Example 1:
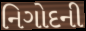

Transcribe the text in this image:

નિગોદની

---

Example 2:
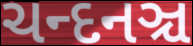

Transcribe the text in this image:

ચન્દનઞ્ચ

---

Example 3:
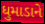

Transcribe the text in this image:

ધુમાડાને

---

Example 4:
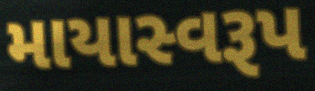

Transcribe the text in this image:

માયાસ્વરૂપ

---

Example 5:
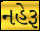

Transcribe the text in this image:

નહેરૂ